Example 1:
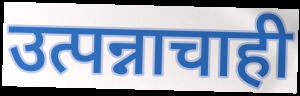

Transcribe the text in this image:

उत्पन्नाचाही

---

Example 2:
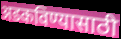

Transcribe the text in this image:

अडकविण्यासाठी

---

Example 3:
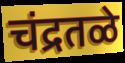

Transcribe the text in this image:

चंद्रतळे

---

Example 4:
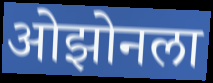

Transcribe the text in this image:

ओझोनला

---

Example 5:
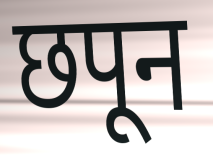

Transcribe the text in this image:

छपून